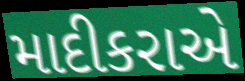
માદીકરાએ